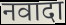
नवादा